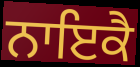
ਨਾਇਕੈ